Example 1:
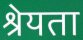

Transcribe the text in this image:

श्रेयता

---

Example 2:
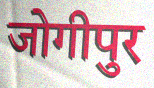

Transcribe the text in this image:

जोगीपुर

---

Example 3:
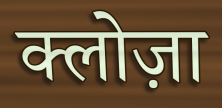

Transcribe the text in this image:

क्लोज़ा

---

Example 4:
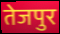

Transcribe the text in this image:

तेजपुर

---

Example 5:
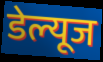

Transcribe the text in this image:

डेल्यूज